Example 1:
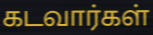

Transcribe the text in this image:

கடவார்கள்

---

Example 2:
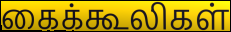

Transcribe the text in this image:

கைக்கூலிகள்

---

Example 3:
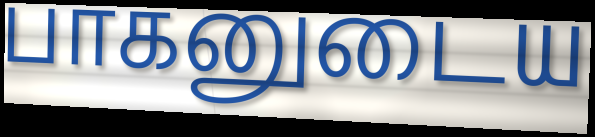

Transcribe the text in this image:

பாகனுடைய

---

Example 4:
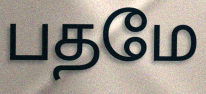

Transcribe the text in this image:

பதமே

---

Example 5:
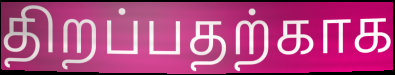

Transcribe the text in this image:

திறப்பதற்காக